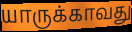
யாருக்காவது